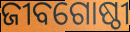
ଜୀବଗୋଷ୍ଠୀ